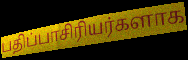
பதிப்பாசிரியர்களாக